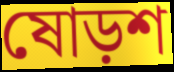
ষোড়শ